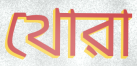
থোৱা